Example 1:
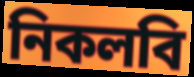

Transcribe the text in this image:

নিকলবি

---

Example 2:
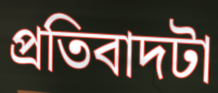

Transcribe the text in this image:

প্রতিবাদটা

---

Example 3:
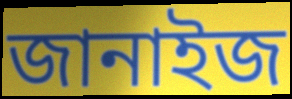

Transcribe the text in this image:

জানাইজ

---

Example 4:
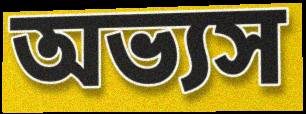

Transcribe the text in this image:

অভ্যস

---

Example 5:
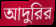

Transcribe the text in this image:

আদুরির